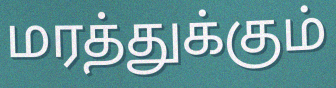
மரத்துக்கும்